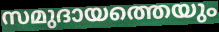
സമുദായത്തെയും